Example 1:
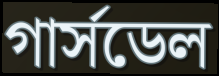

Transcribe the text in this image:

গার্সডেল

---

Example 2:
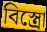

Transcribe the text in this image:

বিস্ত্রো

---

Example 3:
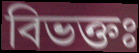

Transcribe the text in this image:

বিভক্তঃ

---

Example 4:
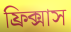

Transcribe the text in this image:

ফ্রিক্সাস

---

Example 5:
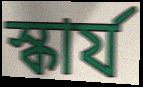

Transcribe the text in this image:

স্কার্য